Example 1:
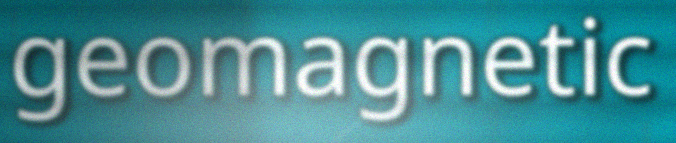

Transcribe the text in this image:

geomagnetic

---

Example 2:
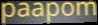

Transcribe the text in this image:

paapom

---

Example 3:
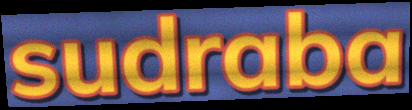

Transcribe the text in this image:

sudraba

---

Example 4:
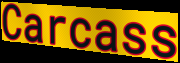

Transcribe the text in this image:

Carcass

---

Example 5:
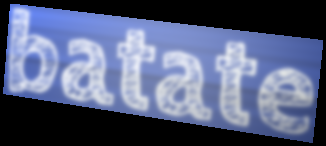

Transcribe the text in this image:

batate